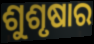
ଶୁଶୃଷାର